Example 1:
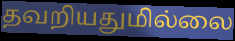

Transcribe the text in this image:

தவறியதுமில்லை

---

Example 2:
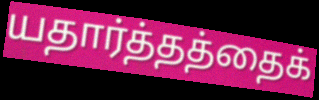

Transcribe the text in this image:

யதார்த்தத்தைக்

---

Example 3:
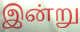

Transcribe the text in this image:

இன்று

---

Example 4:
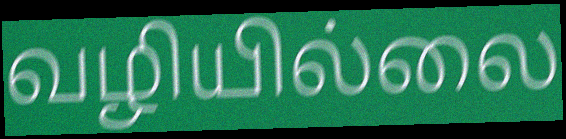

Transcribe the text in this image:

வழியில்லை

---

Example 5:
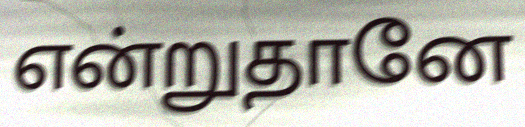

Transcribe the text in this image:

என்றுதானே